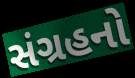
સંગ્રહનો